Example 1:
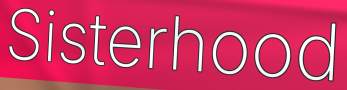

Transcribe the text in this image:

Sisterhood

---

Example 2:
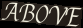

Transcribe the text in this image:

ABOVE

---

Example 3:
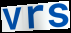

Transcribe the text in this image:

vrs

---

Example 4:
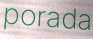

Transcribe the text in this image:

porada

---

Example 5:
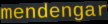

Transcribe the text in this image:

mendengar